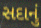
સદાનું